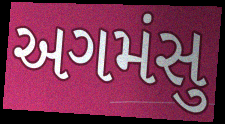
અગમંસુ